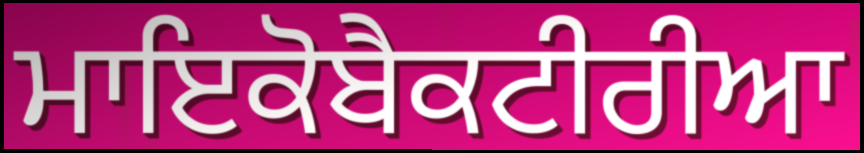
ਮਾਇਕੋਬੈਕਟੀਰੀਆ